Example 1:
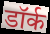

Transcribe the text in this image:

डॉर्क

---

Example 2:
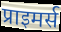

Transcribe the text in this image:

प्राइमर्स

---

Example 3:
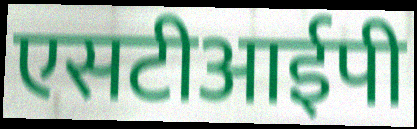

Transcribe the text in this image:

एसटीआईपी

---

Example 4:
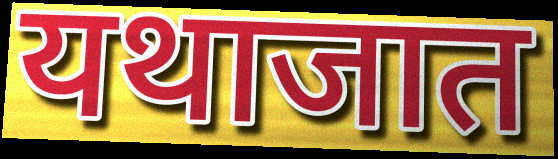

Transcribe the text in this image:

यथाजात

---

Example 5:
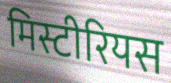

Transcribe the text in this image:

मिस्टीरियस